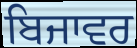
ਬਿਜਾਵਰ